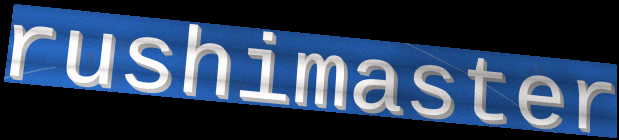
rushimaster